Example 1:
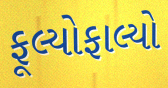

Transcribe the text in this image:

ફૂલ્યોફાલ્યો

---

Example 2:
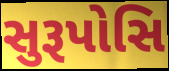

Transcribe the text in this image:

સુરૂપોસિ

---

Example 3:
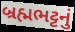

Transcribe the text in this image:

બ્રહ્મભટ્ટનું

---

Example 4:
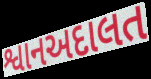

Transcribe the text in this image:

શ્વાનઅદાલત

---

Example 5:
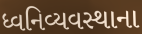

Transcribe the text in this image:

ધ્વનિવ્યવસ્થાના